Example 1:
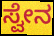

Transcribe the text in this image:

ಸ್ವೇನ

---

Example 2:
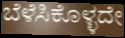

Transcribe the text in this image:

ಬೆಳೆಸಿಕೊಳ್ಳದೇ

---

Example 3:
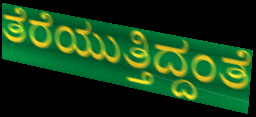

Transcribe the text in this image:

ತೆರೆಯುತ್ತಿದ್ದಂತೆ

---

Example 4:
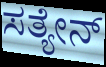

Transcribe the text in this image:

ಸತ್ಯೇನ್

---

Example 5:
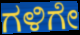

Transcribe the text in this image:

ಗಳಿಗೇ